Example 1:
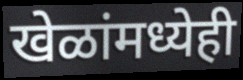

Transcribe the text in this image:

खेळांमध्येही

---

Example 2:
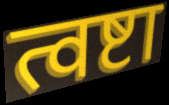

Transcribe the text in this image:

त्वष्टा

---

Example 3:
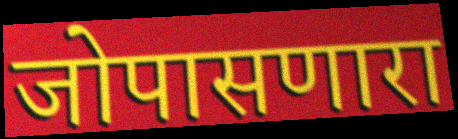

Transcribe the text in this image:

जोपासणारा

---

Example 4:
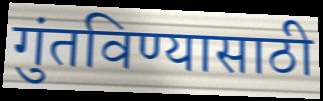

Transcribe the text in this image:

गुंतविण्यासाठी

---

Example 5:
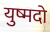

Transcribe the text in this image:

युष्मदो